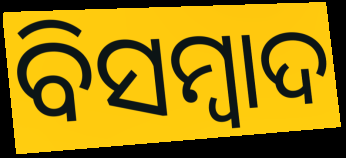
ବିସମ୍ୱାଦ